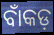
ବାଁକଡ଼